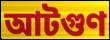
আটগুণ